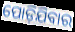
ପୋଡ଼ିଯିବାର